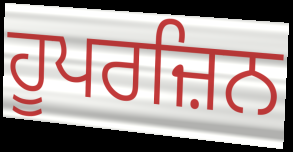
ਹੂਪਰਜ਼ਿਨ